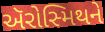
ઍરોસ્મિથને